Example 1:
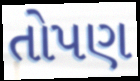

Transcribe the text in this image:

તોપણ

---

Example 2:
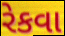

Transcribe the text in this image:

રેકવા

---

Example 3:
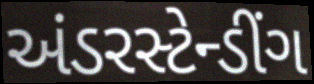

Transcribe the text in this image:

અંડરસ્ટેન્ડીંગ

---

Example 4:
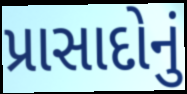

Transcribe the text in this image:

પ્રાસાદોનું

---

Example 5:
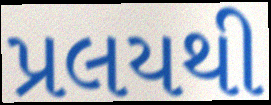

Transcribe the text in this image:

પ્રલયથી